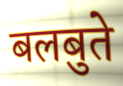
बलबुते